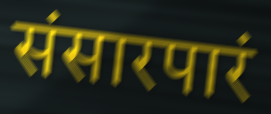
संसारपारं